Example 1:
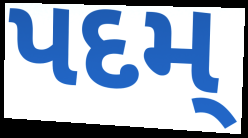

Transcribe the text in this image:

પદમ્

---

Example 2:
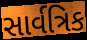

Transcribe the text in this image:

સાર્વત્રિક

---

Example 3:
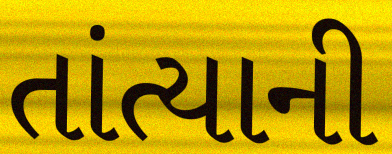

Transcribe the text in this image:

તાંત્યાની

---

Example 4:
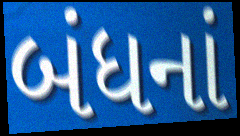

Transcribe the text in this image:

બંધનાં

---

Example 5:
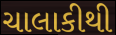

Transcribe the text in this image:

ચાલાકીથી